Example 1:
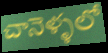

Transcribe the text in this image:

చానెళ్ళలో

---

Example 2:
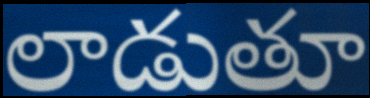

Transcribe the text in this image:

లాడుతూ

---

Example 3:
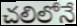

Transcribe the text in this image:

చలిలోనే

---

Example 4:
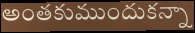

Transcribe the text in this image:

అంతకుముందుకన్నా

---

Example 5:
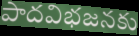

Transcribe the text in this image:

పాదవిభజనకు